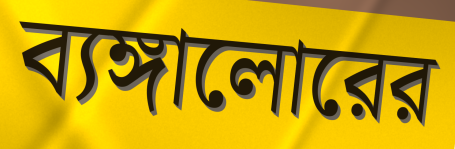
ব্যঙ্গালোরের